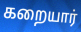
கறையார்